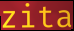
zita